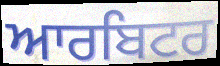
ਆਰਬਿਟਰ